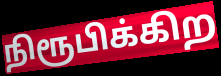
நிரூபிக்கிற